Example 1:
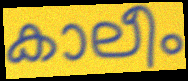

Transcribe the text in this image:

കാലീം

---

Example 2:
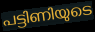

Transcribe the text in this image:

പട്ടിണിയുടെ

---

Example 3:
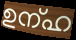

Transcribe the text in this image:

ഉന്ഹ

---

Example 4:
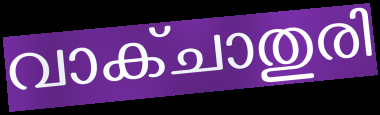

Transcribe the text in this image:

വാക്ചാതുരി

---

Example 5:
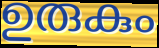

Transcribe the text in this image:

ഉരുകും